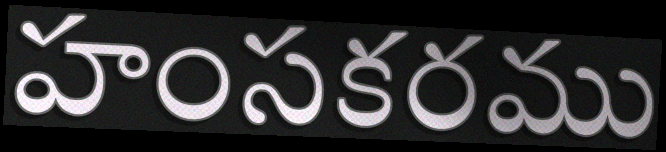
హంసకరము